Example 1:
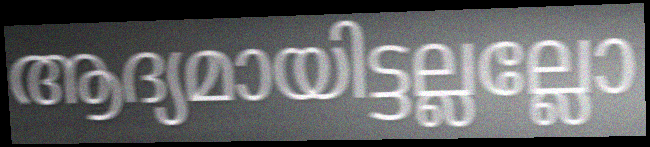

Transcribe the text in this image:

ആദ്യമായിട്ടല്ലല്ലോ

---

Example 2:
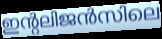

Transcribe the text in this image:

ഇന്റലിജൻസിലെ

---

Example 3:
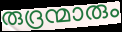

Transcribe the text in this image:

രുദ്രന്മാരും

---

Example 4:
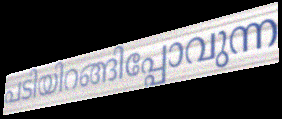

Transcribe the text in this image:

പടിയിറങ്ങിപ്പോവുന്ന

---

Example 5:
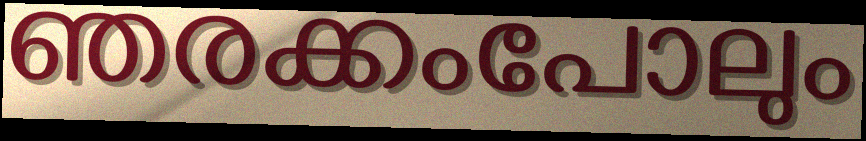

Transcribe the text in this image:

ഞരക്കംപോലും